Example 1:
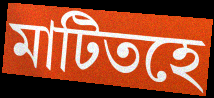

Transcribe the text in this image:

মাটিতহে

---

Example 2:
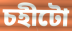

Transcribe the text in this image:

চহীটো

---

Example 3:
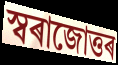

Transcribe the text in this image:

স্বৰাজোত্তৰ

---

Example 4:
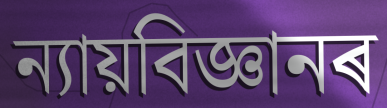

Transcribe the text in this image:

ন্যায়বিজ্ঞানৰ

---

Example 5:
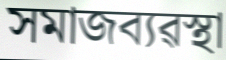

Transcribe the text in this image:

সমাজব্যৱস্থা